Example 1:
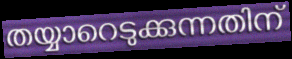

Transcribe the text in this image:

തയ്യാറെടുക്കുന്നതിന്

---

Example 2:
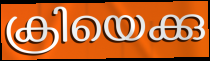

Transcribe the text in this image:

ക്രിയെക്കു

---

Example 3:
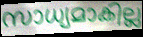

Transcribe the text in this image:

സാധ്യമാകില്ല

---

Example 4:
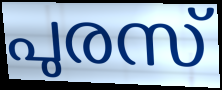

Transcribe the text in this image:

പുരസ്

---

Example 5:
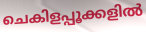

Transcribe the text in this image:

ചെകിളപ്പൂക്കളിൽ